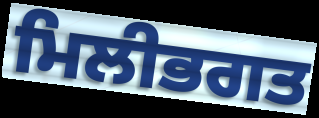
ਮਿਲੀਭਗਤ